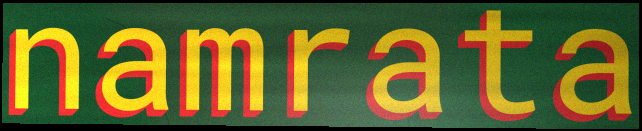
namrata